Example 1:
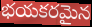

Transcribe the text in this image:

భయకరమైన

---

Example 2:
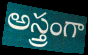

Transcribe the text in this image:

అస్త్రంగా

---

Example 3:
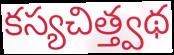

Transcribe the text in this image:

కస్యచిత్త్వథ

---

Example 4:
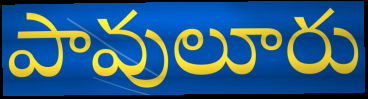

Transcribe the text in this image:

పావులూరు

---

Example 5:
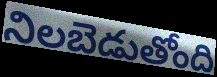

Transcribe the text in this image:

నిలబెడుతోంది